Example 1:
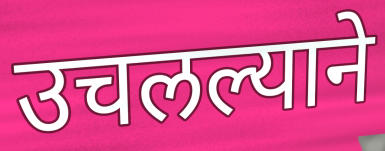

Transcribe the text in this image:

उचलल्याने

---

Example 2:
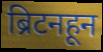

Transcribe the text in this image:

ब्रिटनहून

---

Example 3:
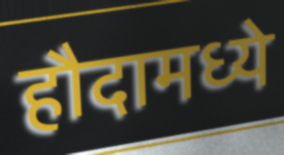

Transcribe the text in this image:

हौदामध्ये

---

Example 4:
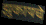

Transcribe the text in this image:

झुकायचे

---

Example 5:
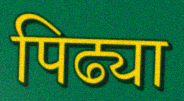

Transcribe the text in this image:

पिढ्या